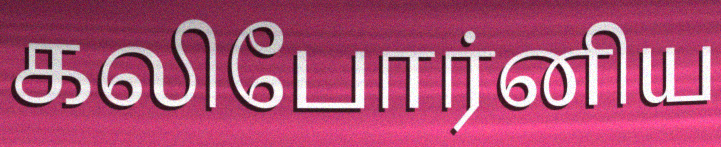
கலிபோர்னிய